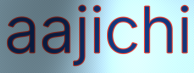
aajichi